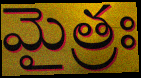
మైత్రః